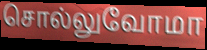
சொல்லுவோமா